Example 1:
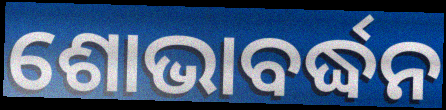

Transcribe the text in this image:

ଶୋଭାବର୍ଦ୍ଧନ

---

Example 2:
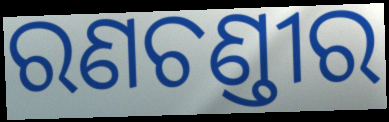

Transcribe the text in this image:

ରଣଚଣ୍ଡୀର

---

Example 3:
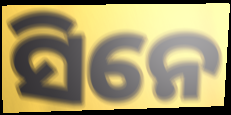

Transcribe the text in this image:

ସିନେ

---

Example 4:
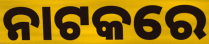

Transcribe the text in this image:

ନାଟକରେ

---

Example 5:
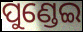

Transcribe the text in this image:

ପୁଣ୍ଡେଇ